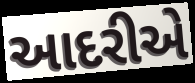
આદરીએ